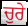
ਚੁਰੇ